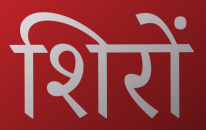
शिरों